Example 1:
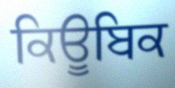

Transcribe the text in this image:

ਕਿਊਬਿਕ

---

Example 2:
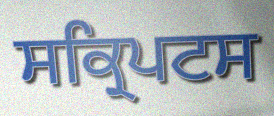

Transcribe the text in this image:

ਸਕ੍ਰਿਪਟਸ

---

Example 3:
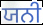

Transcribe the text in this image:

ਯਨੀ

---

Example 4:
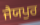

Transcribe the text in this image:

ਜੈਯਪੁਰ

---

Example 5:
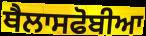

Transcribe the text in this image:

ਥੈਲਾਸਫੋਬੀਆ